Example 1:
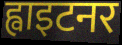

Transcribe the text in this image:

ह्वाइटनर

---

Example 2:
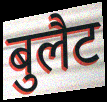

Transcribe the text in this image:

बुलैट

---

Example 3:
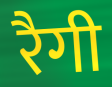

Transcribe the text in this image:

रैगी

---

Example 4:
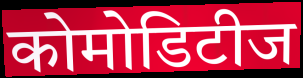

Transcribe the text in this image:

कोमोडिटीज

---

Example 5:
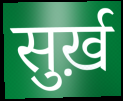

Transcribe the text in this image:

सुर्ख़